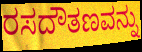
ರಸದೌತಣವನ್ನು